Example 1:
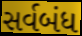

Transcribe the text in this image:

સર્વબંધ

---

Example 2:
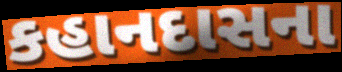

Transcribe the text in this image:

કહાનદાસના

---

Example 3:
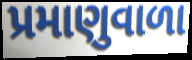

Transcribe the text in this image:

પ્રમાણુવાળા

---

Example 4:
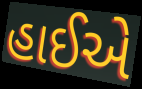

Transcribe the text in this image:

હાઈએ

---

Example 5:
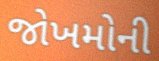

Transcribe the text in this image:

જોખમોની